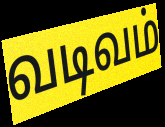
வடிவம்